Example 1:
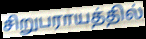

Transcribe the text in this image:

சிறுபராயத்தில்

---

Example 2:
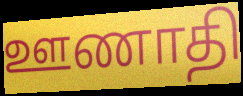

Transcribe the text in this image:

ஊணாதி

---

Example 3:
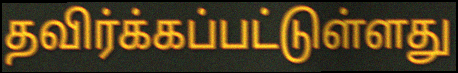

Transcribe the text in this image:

தவிர்க்கப்பட்டுள்ளது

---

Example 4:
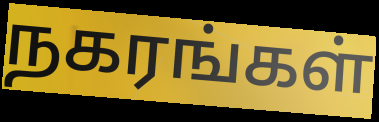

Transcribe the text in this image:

நகரங்கள்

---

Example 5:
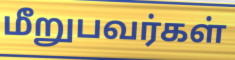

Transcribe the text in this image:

மீறுபவர்கள்